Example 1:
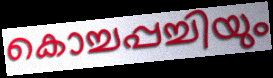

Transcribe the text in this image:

കൊച്ചപ്പച്ചിയും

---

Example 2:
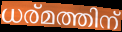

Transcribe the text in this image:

ധര്മത്തിന്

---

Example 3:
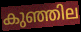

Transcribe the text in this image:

കുഞ്ഞില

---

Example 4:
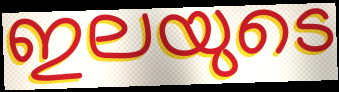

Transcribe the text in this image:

ഇലയുടെ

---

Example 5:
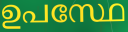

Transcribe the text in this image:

ഉപസ്ഥേ